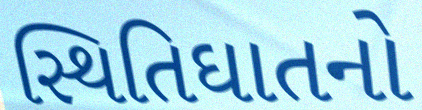
સ્થિતિઘાતનો